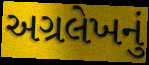
અગ્રલેખનું